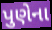
પુણેના